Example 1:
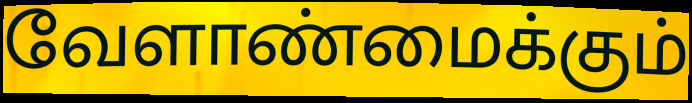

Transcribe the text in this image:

வேளாண்மைக்கும்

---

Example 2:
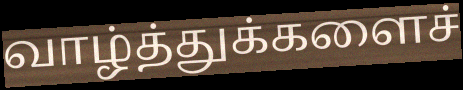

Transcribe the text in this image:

வாழ்த்துக்களைச்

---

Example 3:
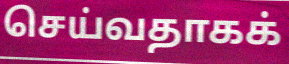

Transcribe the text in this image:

செய்வதாகக்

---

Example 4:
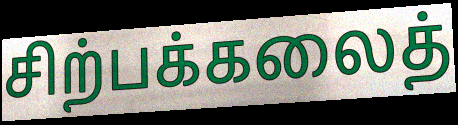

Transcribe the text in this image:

சிற்பக்கலைத்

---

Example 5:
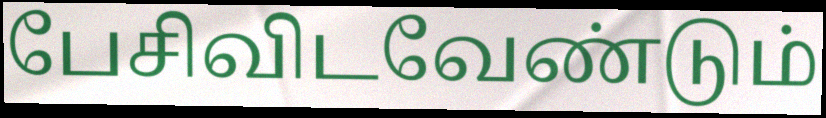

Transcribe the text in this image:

பேசிவிடவேண்டும்